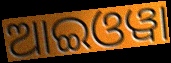
ଆଇଓୱା